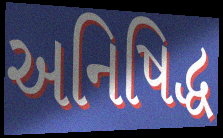
અનિષિદ્ધ